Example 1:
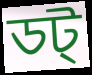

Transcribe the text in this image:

ডট্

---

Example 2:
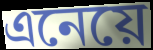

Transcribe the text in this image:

এনেয়ে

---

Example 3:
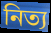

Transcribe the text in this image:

নিত্য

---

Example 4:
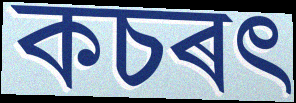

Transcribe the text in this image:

কচৰৎ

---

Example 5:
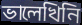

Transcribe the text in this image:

ভালেখিনি